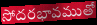
సోదరభావముతో